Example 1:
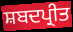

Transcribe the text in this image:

ਸ਼ਬਦਪ੍ਰੀਤ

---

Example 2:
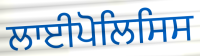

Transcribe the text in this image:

ਲਾਈਪੋਲਿਸਿਸ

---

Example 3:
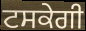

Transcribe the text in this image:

ਟਸਕੇਗੀ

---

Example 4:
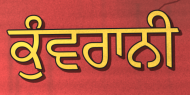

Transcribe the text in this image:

ਕੁੰਵਰਾਨੀ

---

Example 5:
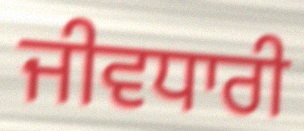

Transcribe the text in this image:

ਜੀਵਧਾਰੀ